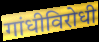
गांधीविरोधी